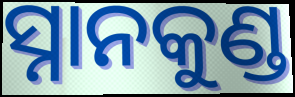
ସ୍ନାନକୁଣ୍ଡ